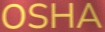
OSHA